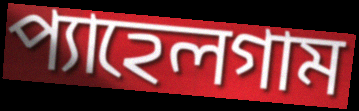
প্যাহেলগাম